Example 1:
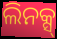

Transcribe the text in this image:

ଲିନକ୍ସ୍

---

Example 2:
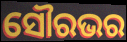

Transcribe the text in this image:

ସୌରଭର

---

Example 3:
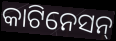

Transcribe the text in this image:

କାଟିନେସନ୍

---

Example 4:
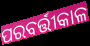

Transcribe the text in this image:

ପରବର୍ତ୍ତୀକାଳ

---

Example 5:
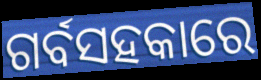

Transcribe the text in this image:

ଗର୍ବସହକାରେ